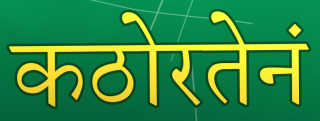
कठोरतेनं